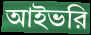
আইভরি